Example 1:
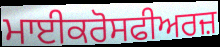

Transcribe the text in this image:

ਮਾਈਕਰੋਸਫੀਅਰਜ਼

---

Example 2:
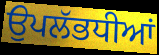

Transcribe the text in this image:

ਉਪਲੱਭਧੀਆਂ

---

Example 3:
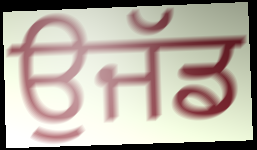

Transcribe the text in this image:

ਉਜੱਡ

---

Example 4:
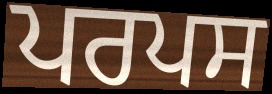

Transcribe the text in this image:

ਪਰਪਸ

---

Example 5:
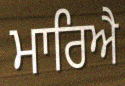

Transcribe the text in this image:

ਮਾਰਿਐ